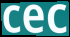
cec